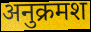
अनुक्रमश